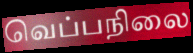
வெப்பநிலை